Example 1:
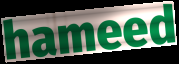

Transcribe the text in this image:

hameed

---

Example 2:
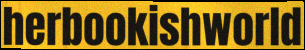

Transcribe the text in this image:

herbookishworld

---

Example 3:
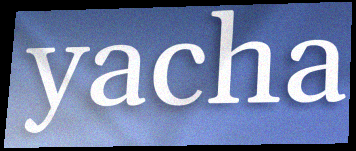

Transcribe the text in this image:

yacha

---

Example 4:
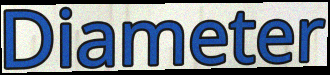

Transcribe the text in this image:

Diameter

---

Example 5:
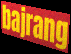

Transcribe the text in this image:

bajrang